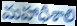
మహాధీశాలి